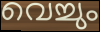
വെച്ചും